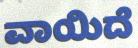
ವಾಯಿದೆ